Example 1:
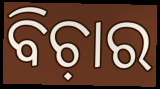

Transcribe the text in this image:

ବିଚ଼ାର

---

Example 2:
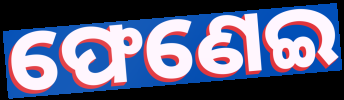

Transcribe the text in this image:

ଫେଣେଇ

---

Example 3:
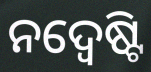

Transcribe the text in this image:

ନଦ୍ୱେଷ୍ଟି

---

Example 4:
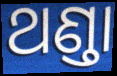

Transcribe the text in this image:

ଥଣ୍ଡା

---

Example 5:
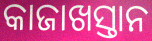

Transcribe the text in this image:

କାଜାଖସ୍ତାନ